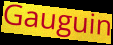
Gauguin